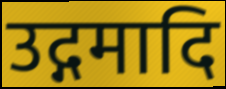
उद्गमादि